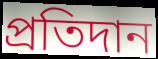
প্রতিদান